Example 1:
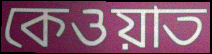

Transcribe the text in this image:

কেওয়াত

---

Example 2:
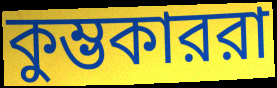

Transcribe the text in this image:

কুম্ভকাররা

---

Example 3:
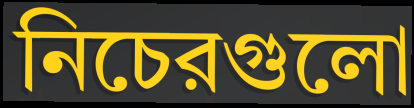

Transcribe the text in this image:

নিচেরগুলো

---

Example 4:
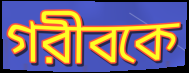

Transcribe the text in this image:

গরীবকে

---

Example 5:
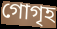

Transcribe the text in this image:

গোগৃহ